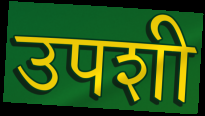
उपशी